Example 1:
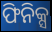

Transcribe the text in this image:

ଫିନିକ୍ସ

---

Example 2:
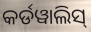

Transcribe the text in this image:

କର୍ଡୱାଲିସ୍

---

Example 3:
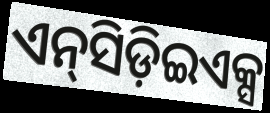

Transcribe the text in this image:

ଏନ୍‍ସିଡ଼ିଇଏକ୍ସ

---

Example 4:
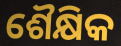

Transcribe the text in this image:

ଶୈକ୍ଷିକ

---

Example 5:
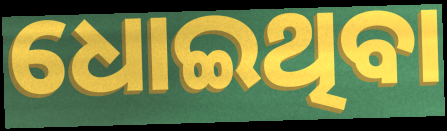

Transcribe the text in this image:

ଧୋଇଥିବା